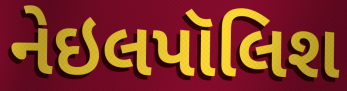
નેઇલપૉલિશ